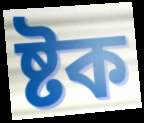
ষ্টক